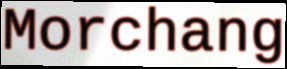
Morchang